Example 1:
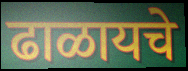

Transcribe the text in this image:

ढाळायचे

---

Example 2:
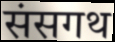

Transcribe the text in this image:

संसगथ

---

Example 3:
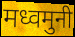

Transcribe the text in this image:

मध्वमुनी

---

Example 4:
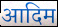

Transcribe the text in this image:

आदिम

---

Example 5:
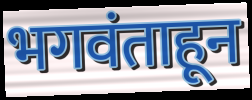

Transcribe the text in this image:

भगवंताहून